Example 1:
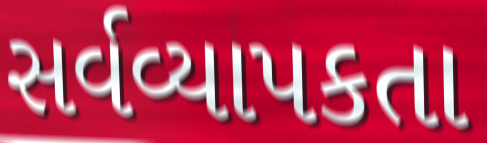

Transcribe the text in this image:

સર્વવ્યાપકતા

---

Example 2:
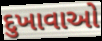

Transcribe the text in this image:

દુખાવાઓ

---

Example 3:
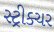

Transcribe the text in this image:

સ્ટ્રીક્ચર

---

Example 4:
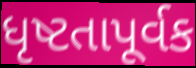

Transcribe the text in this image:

ધૃષ્ટતાપૂર્વક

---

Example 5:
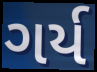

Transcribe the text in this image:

ગર્ય